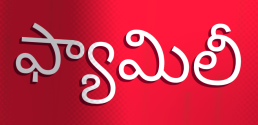
ఫ్యామిలీ